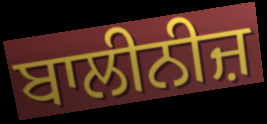
ਬਾਲੀਨੀਜ਼